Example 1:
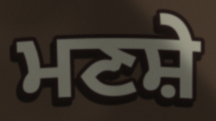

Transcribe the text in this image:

ਮਣਸ਼ੇ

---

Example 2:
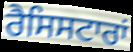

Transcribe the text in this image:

ਰੈਸਿਸਟਾਰਾਂ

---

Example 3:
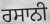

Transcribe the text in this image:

ਰਸਾਨੀ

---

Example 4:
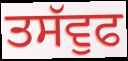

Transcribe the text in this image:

ਤਸੱਵੁਫ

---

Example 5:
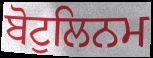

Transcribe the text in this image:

ਬੋਟੁਲਿਨਮ